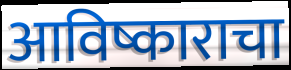
आविष्काराचा